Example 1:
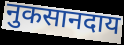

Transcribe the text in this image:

नुकसानदाय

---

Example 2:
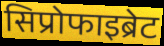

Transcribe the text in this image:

सिप्रोफाइब्रेट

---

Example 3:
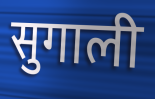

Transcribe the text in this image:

सुगाली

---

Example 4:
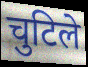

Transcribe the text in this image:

चुटिले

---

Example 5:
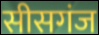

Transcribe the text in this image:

सीसगंज